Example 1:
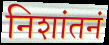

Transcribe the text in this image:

निशांतनं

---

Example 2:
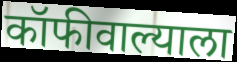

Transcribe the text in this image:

कॉफीवाल्याला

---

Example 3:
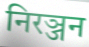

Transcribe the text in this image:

निरञ्जन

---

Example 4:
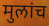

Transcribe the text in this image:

मुलांच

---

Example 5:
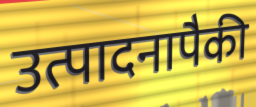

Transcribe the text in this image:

उत्पादनापैकी